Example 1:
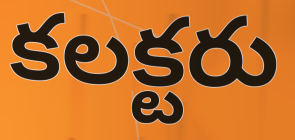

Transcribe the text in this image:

కలక్టరు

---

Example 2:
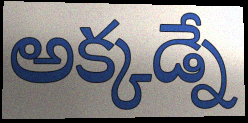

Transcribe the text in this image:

అక్కడ్నే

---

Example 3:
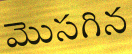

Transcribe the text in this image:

మొసగిన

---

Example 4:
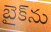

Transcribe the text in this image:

బైక్‌ను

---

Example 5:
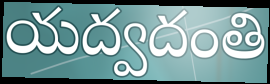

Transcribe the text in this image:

యద్వదంతి